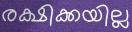
രക്ഷിക്കയില്ല